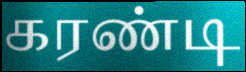
கரண்டி